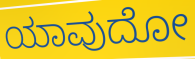
ಯಾವುದೋ